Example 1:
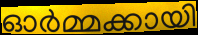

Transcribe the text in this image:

ഓർമ്മക്കായി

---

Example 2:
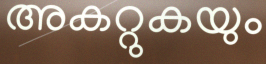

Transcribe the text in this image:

അകറ്റുകയും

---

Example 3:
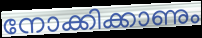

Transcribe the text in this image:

നോക്കിക്കാണും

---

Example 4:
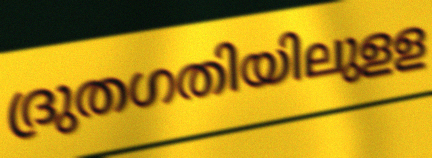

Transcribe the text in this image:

ദ്രുതഗതിയിലുളള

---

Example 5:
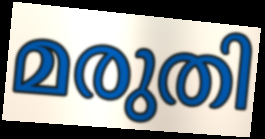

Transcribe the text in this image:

മരുതി